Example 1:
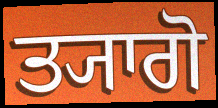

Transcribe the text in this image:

ਤ੍ਯਾਗੋ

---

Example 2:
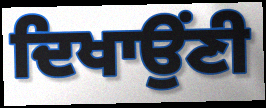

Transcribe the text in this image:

ਦਿਖਾਉਂਣੀ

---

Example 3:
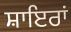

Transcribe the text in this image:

ਸ਼ਾਇਰਾਂ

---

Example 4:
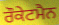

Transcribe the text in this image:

ਰੌਕੇਟਮੈਨ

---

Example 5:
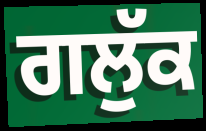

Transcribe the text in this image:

ਗਲੁੱਕ